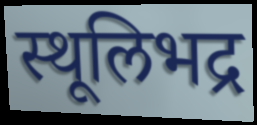
स्थूलिभद्र